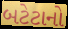
બટેટાનો